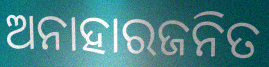
ଅନାହାରଜନିତ